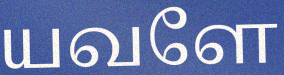
யவளே